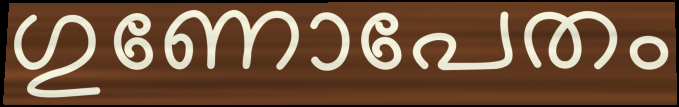
ഗുണോപേതം